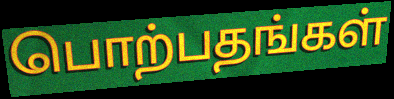
பொற்பதங்கள்